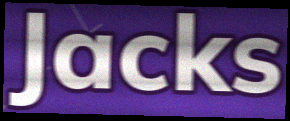
Jacks